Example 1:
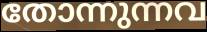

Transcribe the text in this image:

തോന്നുന്നവ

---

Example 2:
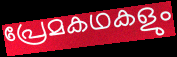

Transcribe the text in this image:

പ്രേമകഥകളും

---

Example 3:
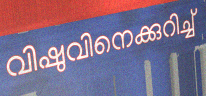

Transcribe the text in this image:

വിഷുവിനെക്കുറിച്ച്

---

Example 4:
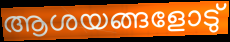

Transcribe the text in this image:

ആശയങ്ങളോടു്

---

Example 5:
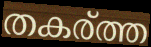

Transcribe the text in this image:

തകര്ത്ത